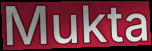
Mukta